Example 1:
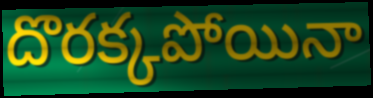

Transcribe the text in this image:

దొరక్కపోయినా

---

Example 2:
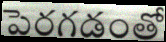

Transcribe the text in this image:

పెరగడంతో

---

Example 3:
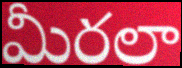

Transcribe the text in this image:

మీరలా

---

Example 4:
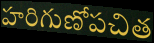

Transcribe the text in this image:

హరిగుణోపచిత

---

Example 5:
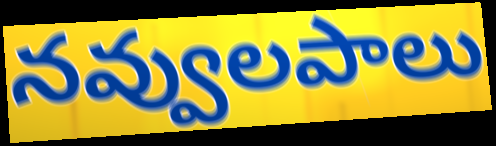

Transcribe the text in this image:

నవ్వులపాలు